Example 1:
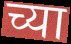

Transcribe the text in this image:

च्या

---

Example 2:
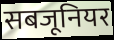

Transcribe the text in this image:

सबजूनियर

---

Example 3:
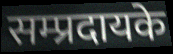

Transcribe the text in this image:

सम्प्रदायके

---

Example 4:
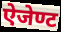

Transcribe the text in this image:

ऐजेण्ट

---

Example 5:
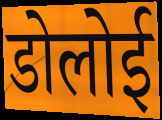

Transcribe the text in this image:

डोलोई